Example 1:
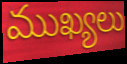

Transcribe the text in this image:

ముఖ్యలు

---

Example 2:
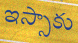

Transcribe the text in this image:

ఇస్సాకు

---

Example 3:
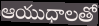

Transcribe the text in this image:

ఆయుధాలతో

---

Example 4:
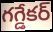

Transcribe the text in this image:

గగ్డేకర్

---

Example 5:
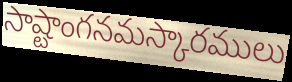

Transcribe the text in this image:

సాష్టాంగనమస్కారములు